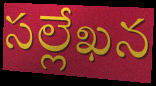
సల్లేఖన